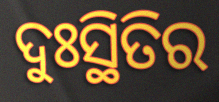
ଦୁଃସ୍ଥିତିର